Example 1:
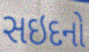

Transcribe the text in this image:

સઇદનો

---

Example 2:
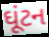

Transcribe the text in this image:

ઘૂંટન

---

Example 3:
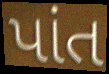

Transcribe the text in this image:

પાંત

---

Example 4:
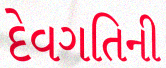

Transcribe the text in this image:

દેવગતિની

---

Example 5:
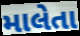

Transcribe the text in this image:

માલેતા